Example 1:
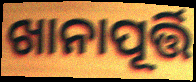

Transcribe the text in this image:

ଖାନାପୂର୍ତ୍ତି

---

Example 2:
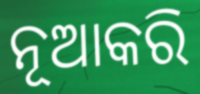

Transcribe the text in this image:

ନୂଆକରି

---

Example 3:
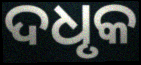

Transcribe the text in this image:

ଦଧୃକ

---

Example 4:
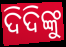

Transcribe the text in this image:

ଦିଦିଙ୍କୁ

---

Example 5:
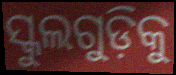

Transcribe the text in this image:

ସ୍କୁଲଗୁଡ଼ିକୁ